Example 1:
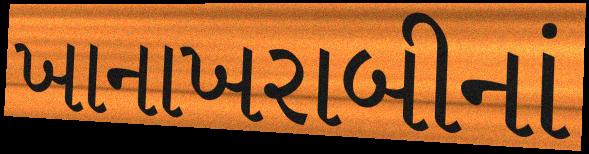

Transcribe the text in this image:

ખાનાખરાબીનાં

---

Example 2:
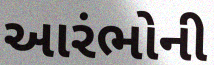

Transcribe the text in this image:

આરંભોની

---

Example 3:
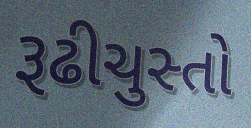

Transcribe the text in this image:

રૂઢીચુસ્તો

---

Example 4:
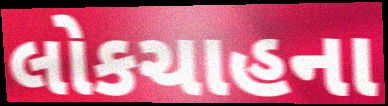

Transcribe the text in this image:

લોકચાહના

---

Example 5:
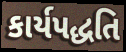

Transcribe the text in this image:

કાર્યપદ્ધતિ